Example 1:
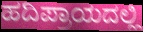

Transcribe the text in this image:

ಹದಿಪ್ರಾಯದಲ್ಲಿ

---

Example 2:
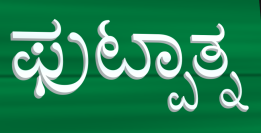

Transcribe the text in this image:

ಫುಟ್ಪಾತ್ನ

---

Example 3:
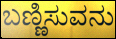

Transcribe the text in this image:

ಬಣ್ಣಿಸುವನು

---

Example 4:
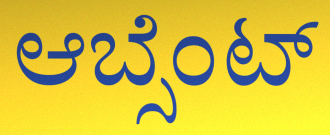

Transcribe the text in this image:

ಆಬ್ಸೆಂಟ್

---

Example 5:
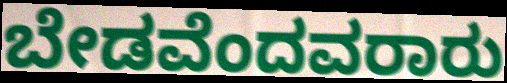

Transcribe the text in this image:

ಬೇಡವೆಂದವರಾರು